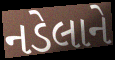
નડેલાને